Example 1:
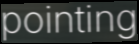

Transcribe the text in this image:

pointing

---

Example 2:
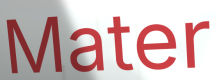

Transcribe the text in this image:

Mater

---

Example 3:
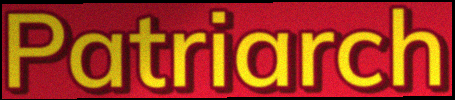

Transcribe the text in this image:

Patriarch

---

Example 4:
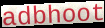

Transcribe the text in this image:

adbhoot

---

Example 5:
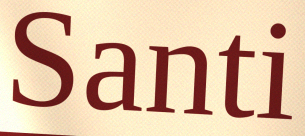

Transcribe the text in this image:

Santi